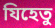
যিহেতু